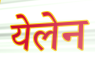
येलेन